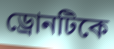
ড্রোনটিকে